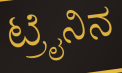
ಟ್ರೈನಿನ